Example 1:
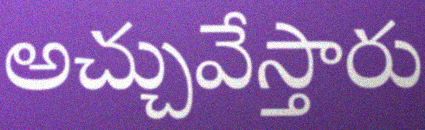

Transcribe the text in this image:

అచ్చువేస్తారు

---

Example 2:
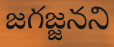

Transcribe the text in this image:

జగజ్జనని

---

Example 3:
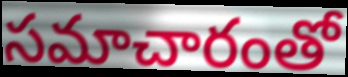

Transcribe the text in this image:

సమాచారంతో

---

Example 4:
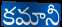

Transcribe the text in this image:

కమానీ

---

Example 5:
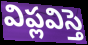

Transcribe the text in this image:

విప్లవిస్తె